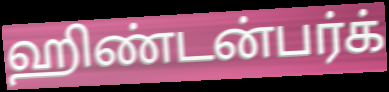
ஹிண்டன்பர்க்